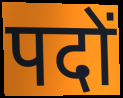
पदों